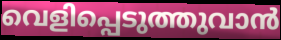
വെളിപ്പെടുത്തുവാൻ